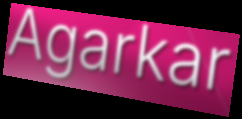
Agarkar